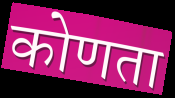
कोणता